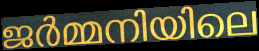
ജർമ്മനിയിലെ